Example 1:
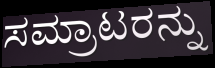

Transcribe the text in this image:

ಸಮ್ರಾಟರನ್ನು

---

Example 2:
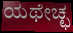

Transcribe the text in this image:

ಯಥೇಚ್ಛ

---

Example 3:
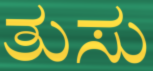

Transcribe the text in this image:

ತುಸು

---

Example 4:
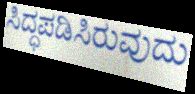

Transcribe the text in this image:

ಸಿದ್ಧಪಡಿಸಿರುವುದು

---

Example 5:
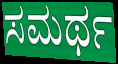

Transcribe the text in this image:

ಸಮರ್ಥ